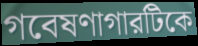
গবেষণাগারটিকে